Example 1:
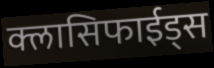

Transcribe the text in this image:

क्लासिफाईड्स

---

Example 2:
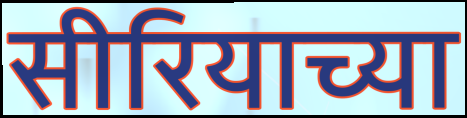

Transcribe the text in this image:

सीरियाच्या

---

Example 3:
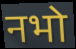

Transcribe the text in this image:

नभो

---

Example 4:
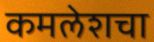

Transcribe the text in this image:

कमलेशचा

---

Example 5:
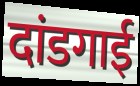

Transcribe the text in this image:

दांडगाई